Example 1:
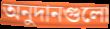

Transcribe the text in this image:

অনুদানগুলো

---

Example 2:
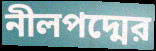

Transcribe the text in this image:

নীলপদ্মের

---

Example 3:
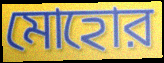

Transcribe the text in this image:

মোহোর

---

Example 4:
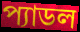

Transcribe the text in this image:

প্যাডল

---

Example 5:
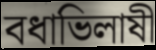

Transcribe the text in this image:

বধাভিলাষী